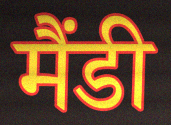
मैंडी